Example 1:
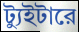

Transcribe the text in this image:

ট্যুইটারে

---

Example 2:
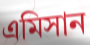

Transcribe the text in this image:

এমিসান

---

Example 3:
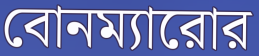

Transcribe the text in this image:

বোনম্যারোর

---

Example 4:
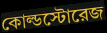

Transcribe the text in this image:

কোল্ডস্টোরেজ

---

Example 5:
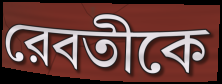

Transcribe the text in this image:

রেবতীকে